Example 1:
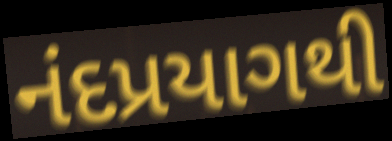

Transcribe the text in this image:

નંદપ્રયાગથી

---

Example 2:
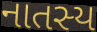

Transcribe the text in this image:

નાતસ્ય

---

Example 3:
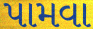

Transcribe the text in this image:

પામવા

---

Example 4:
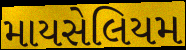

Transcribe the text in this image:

માયસેલિયમ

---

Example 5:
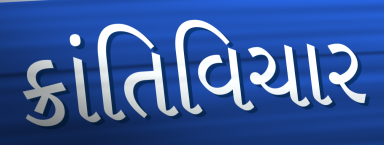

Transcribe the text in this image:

ક્રાંતિવિચાર